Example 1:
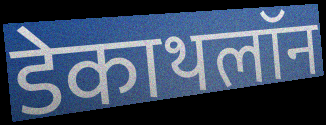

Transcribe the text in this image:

डेकाथलॉन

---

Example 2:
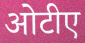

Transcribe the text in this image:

ओटीए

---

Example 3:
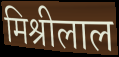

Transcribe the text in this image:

मिश्रीलाल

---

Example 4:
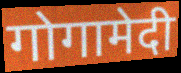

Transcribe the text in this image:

गोगामेदी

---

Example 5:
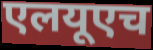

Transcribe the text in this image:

एलयूएच